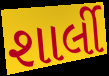
શાર્લી